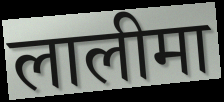
लालीमा